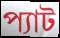
প্যাট